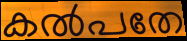
കൽപതേ